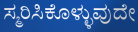
ಸ್ಮರಿಸಿಕೊಳ್ಳುವುದೇ